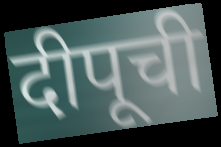
दीपूची